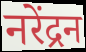
नरेंद्रन